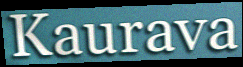
Kaurava